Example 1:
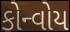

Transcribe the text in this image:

કોન્વોય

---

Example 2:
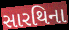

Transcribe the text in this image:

સારથિના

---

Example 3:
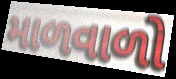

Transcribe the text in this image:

માળવાળો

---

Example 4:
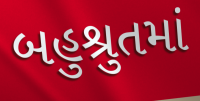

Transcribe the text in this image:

બહુશ્રુતમાં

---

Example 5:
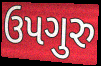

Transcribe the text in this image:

ઉપગુરુ